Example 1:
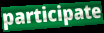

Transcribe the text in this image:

participate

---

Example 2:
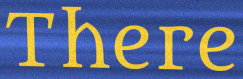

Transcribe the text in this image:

There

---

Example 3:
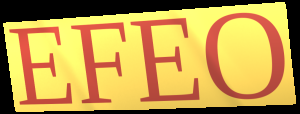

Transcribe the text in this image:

EFEO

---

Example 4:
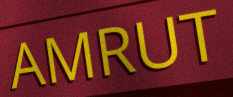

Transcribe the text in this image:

AMRUT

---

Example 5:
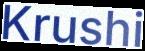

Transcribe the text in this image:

Krushi